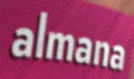
almana